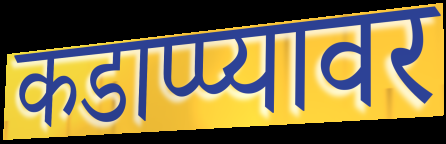
कडाप्प्यावर